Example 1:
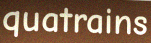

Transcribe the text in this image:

quatrains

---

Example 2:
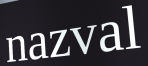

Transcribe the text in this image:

nazval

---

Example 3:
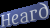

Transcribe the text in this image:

Heard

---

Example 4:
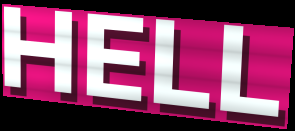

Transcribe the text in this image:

HELL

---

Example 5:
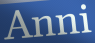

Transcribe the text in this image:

Anni